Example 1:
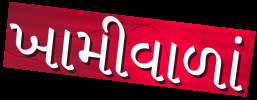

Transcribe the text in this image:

ખામીવાળાં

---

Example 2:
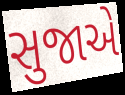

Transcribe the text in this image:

સુજાએ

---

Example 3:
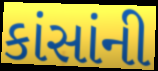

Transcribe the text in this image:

કાંસાંની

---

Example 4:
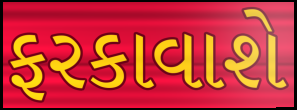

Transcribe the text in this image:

ફરકાવાશે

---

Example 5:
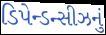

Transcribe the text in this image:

ડિપેન્ડન્સીઝનું